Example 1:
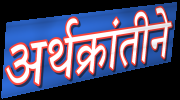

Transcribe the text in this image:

अर्थक्रांतीने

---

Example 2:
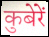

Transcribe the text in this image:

कुबेरें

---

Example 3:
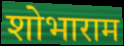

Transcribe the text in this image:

शोभाराम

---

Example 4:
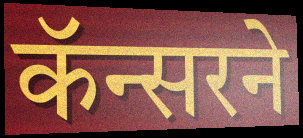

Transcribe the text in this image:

कॅन्सरने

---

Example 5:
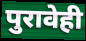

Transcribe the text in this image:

पुरावेही